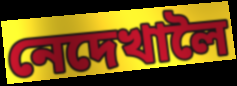
নেদেখালৈ